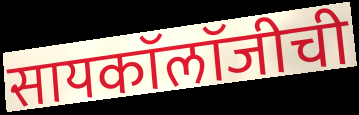
सायकॉलॉजीची